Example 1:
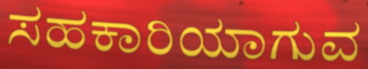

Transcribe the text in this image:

ಸಹಕಾರಿಯಾಗುವ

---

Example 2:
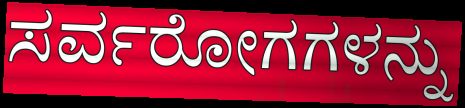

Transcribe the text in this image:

ಸರ್ವರೋಗಗಳನ್ನು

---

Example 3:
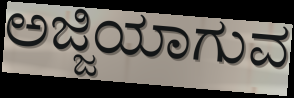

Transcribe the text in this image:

ಅಜ್ಜಿಯಾಗುವ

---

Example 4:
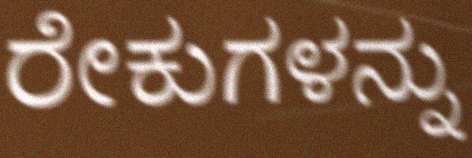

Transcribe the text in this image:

ರೇಕುಗಳನ್ನು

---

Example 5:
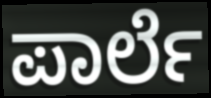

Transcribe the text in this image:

ಪಾರ್ಲೆ